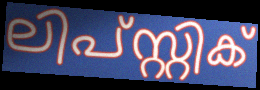
ലിപ്സ്റ്റിക്